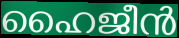
ഹൈജീൻ